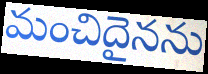
మంచిదైనను